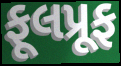
ફૂલપ્રૂફ